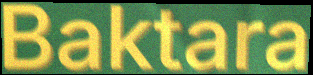
Baktara